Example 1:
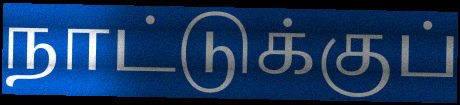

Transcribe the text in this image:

நாட்டுக்குப்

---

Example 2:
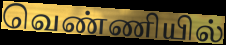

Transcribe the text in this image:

வெண்ணியில்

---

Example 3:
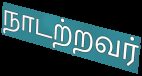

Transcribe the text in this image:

நாடற்றவர்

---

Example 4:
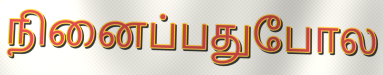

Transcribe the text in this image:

நினைப்பதுபோல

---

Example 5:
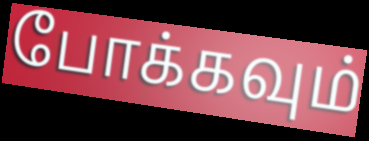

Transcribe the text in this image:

போக்கவும்